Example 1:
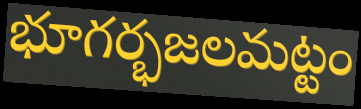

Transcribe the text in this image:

భూగర్భజలమట్టం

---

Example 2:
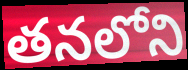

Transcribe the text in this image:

తనలోని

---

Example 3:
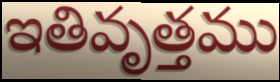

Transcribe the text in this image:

ఇతివృత్తము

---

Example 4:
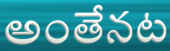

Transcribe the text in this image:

అంతేనట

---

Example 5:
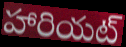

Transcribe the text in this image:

హారియట్